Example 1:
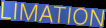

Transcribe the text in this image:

LIMATION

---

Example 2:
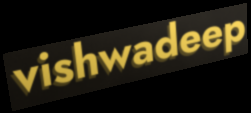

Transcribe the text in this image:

vishwadeep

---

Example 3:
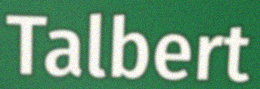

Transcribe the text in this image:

Talbert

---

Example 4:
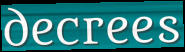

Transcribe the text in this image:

decrees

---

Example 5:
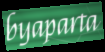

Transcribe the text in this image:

byaparta